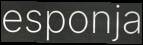
esponja